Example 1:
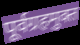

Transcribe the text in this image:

पूर्वग्रहमुक्त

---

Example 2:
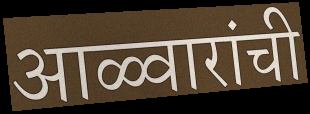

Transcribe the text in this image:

आळ्वारांची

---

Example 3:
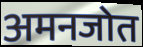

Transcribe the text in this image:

अमनजोत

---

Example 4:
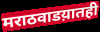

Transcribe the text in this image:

मराठवाडय़ातही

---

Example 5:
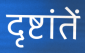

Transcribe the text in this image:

दृष्टांतें